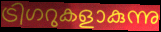
ട്രിഗറുകളാകുന്നു